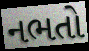
નભતો